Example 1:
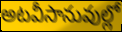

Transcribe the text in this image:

అటవీసానువుల్లో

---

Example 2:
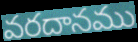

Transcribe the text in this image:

వరదానము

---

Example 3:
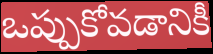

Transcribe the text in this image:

ఒప్పుకోవడానికీ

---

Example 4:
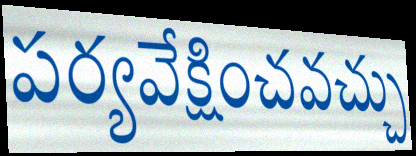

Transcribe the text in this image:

పర్యవేక్షించవచ్చు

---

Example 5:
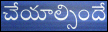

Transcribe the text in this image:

చేయాల్సిందే